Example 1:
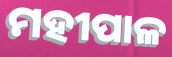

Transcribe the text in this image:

ମହୀପାଳ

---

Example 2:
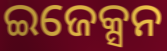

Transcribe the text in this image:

ଇଜେକ୍ସନ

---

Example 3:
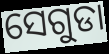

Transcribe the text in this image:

ସେଗୁଡା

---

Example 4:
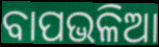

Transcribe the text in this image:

ବାପଭଳିଆ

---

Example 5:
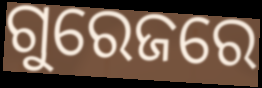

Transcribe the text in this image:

ଗୁରେଜରେ